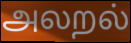
அலறல்